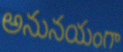
అనునయంగా